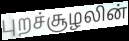
புறச்சூழலின்